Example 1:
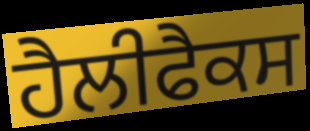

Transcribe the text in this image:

ਹੈਲੀਫੈਕਸ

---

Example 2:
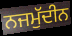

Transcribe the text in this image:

ਨਜਮੁੱਦੀਨ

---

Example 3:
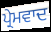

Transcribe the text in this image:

ਪ੍ਰੇਮਵਾਦ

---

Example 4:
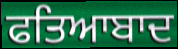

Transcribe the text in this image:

ਫਤਿਆਬਾਦ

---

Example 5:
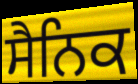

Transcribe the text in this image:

ਸੈਨਿਕ